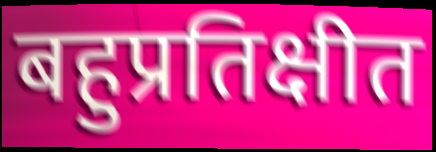
बहुप्रतिक्षीत